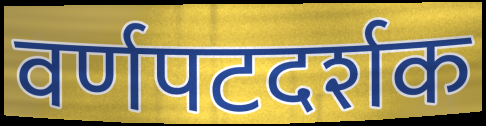
वर्णपटदर्शक